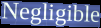
Negligible